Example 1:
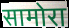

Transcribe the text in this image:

सामोरा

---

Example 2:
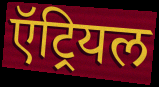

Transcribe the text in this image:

ऍट्रियल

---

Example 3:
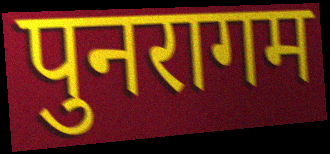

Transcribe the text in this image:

पुनरागम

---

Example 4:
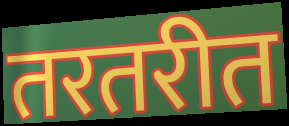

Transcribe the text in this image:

तरतरीत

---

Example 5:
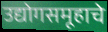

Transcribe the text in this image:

उद्योगसमूहाचे